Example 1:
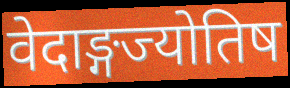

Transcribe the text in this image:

वेदाङ्गज्योतिष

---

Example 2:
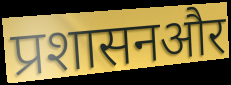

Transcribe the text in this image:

प्रशासनऔर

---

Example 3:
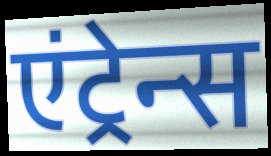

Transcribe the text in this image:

एंट्रेन्स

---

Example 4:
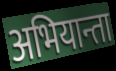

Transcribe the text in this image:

अभियान्ता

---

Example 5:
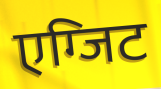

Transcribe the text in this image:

एग्जिट